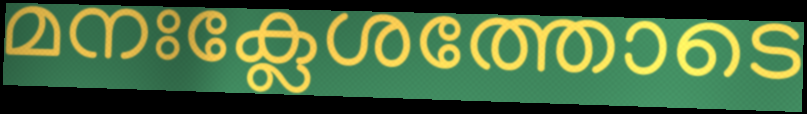
മനഃക്ലേശത്തോടെ